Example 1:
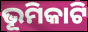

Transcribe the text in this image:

ଭୂମିକାଟି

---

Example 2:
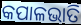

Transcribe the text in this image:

କପାଳଭାତି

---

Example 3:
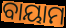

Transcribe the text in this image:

ବାୟାମ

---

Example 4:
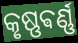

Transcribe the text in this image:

କୃଷ୍ଣଵର୍ଣ୍ଣ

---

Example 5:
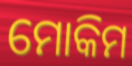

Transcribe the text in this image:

ମୋକିମ